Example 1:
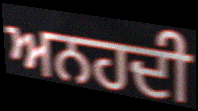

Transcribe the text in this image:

ਅਨਹਦੀ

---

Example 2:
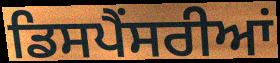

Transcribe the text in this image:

ਡਿਸਪੈਂਸਰੀਆਂ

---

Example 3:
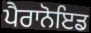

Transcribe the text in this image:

ਪੈਰਾਨੋਇਡ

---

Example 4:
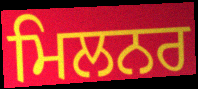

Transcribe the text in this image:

ਮਿਲਨਰ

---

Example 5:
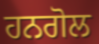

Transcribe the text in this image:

ਹਨਗੋਲ